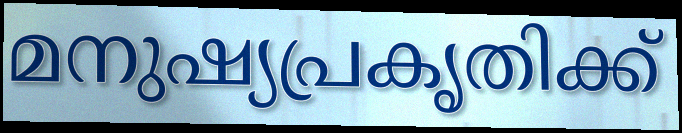
മനുഷ്യപ്രകൃതിക്ക്